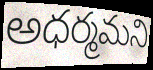
అధర్మమని